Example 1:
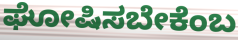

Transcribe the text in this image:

ಘೋಷಿಸಬೇಕೆಂಬ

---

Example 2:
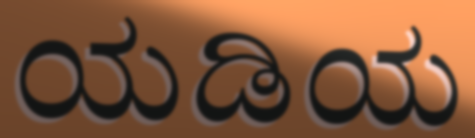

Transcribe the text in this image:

ಯಡಿಯ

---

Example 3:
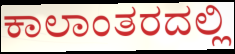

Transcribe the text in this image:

ಕಾಲಾಂತರದಲ್ಲಿ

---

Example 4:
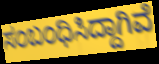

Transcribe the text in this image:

ಸಂಬಂಧಿಸಿದ್ದಾಗಿವೆ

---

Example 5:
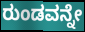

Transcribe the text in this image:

ರುಂಡವನ್ನೇ